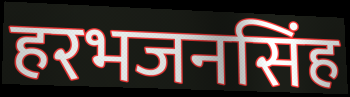
हरभजनसिंह